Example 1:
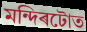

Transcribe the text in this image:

মন্দিৰটোত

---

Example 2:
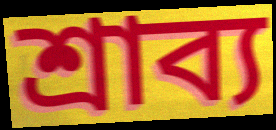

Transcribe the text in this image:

শ্ৰাব্য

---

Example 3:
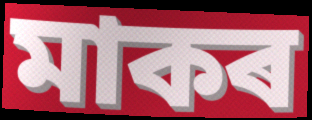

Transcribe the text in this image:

মাকৰ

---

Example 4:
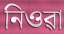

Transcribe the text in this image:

নিওৱা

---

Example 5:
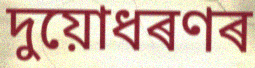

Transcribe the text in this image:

দুয়োধৰণৰ